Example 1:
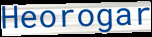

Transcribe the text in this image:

Heorogar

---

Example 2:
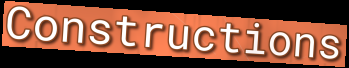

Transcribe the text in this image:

Constructions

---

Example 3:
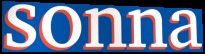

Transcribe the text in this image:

sonna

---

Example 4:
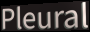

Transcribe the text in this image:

Pleural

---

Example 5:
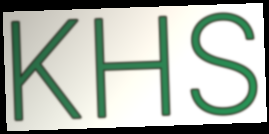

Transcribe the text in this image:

KHS